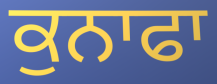
ਕੁਨਾਫਾ